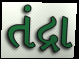
તંદ્રા